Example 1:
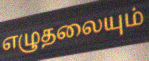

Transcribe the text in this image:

எழுதலையும்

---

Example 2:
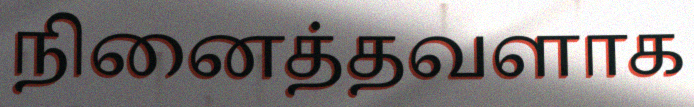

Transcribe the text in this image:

நினைத்தவளாக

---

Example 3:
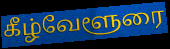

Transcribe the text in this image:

கீழ்வேளூரை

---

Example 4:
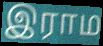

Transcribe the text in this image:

இராம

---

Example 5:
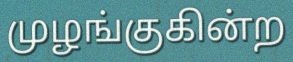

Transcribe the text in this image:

முழங்குகின்ற